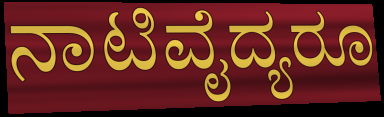
ನಾಟಿವೈದ್ಯರೂ